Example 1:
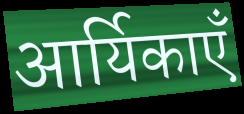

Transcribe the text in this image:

आर्यिकाएँ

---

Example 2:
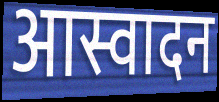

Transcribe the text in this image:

आस्वादन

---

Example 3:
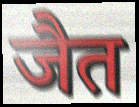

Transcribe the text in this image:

जैत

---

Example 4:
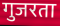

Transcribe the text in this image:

गुजरता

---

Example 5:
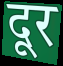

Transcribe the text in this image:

दूर